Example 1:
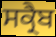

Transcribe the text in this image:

ਸਕ੍ਰੈਬ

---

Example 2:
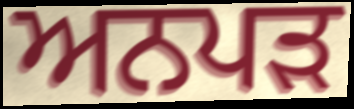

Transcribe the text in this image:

ਅਨਪੜ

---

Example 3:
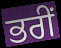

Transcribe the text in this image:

ਭਰੀਂ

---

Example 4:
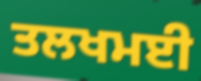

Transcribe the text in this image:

ਤਲਖਮਈ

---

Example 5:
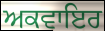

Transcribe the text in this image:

ਅਕਵਾਇਰ